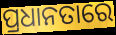
ପ୍ରଧାନତାରେ